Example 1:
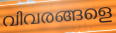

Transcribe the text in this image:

വിവരങ്ങളെ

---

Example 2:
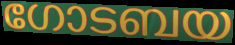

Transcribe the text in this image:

ഗോടബയ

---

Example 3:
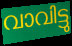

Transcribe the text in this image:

വാവിട്ടു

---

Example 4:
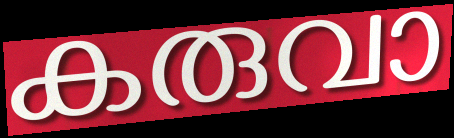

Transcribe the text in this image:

കരുവാ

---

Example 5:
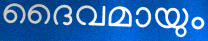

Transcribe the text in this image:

ദൈവമായും